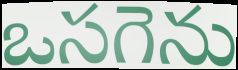
ఒసగెను